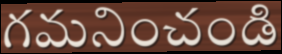
గమనించండి